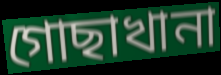
গোছাখানা